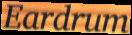
Eardrum